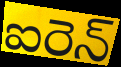
ఐరెన్